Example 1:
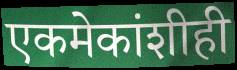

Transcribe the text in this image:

एकमेकांशीही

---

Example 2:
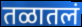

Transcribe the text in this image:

तळातलं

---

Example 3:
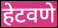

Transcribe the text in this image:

हेटवणे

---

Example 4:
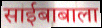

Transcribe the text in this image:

साईबाबाला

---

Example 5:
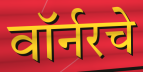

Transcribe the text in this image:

वॉर्नरचे